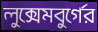
লুক্সেমবুর্গের